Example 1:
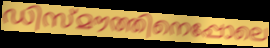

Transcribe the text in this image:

ഡിസ്മൗത്തിനെപ്പോലെ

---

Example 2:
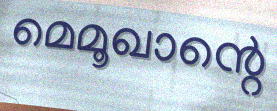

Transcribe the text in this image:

മെമൂഖാന്റെ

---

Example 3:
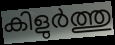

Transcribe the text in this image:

കിളുർത്തു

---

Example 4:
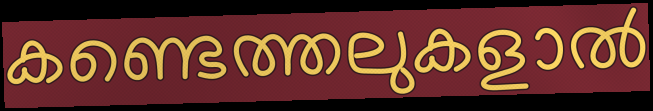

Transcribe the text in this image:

കണ്ടെത്തലുകളാൽ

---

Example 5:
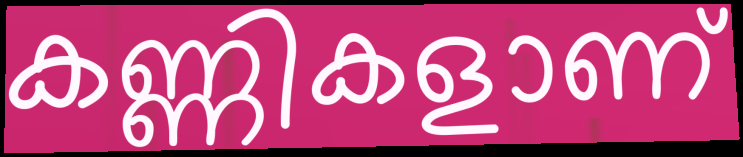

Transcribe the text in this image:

കണ്ണികളാണ്